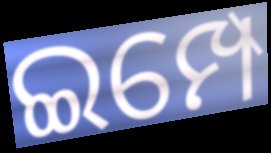
ଇମ୍ପେ